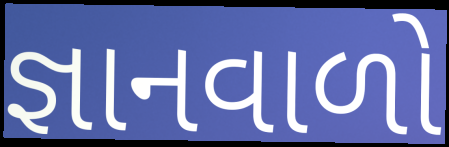
જ્ઞાનવાળો